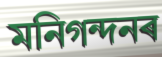
মনিগন্দনৰ